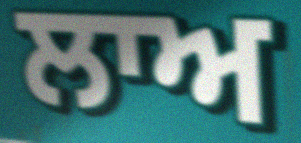
ਲਾਅ